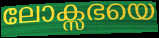
ലോക്സഭയെ